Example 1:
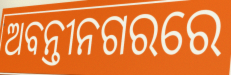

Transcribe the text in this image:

ଅବନ୍ତୀନଗରରେ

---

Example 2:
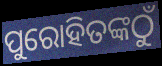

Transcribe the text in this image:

ପୁରୋହିତଙ୍କଠୁଁ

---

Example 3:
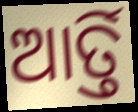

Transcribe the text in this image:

ଆର୍ତ୍ତି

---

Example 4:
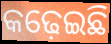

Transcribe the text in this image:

କଢ଼େଇଛି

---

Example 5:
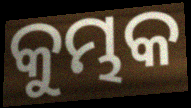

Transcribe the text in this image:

କୁମ୍ଭକ